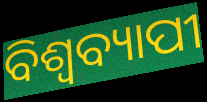
ବିଶ୍ଵବ୍ୟାପୀ